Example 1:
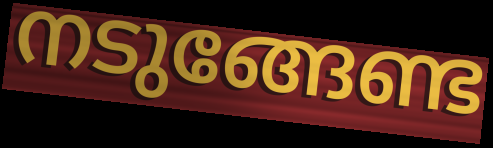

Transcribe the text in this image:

നടുങ്ങേണ്ട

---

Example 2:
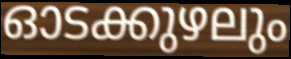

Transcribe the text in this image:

ഓടക്കുഴലും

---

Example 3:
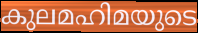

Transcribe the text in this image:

കുലമഹിമയുടെ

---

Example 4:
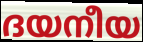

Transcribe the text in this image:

ദയനീയ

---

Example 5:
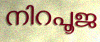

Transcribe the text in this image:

നിറപൂജ